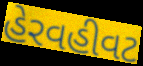
હેરવહીવટ